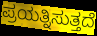
ಪ್ರಯತ್ನಿಸುತ್ತದೆ